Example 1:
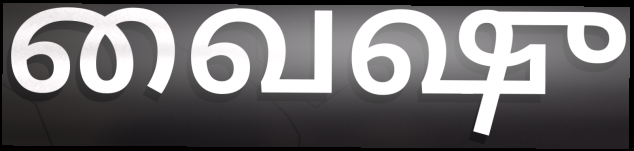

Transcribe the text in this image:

வைஷு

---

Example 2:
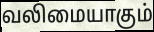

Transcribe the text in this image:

வலிமையாகும்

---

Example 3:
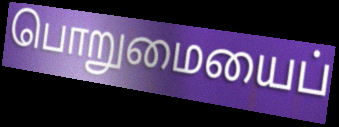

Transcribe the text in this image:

பொறுமையைப்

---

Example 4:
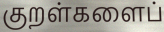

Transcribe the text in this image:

குறள்களைப்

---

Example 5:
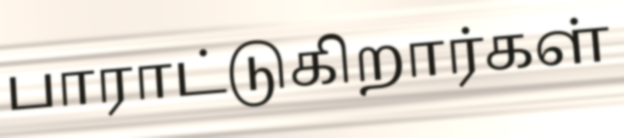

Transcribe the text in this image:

பாராட்டுகிறார்கள்